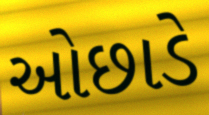
ઓછાડે